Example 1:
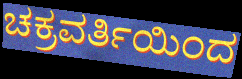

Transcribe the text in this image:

ಚಕ್ರವರ್ತಿಯಿಂದ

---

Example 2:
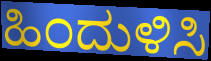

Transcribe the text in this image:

ಹಿಂದುಳಿಸಿ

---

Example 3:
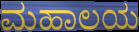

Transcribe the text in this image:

ಮಹಾಲಯ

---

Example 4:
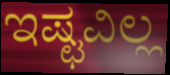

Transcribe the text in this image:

ಇಷ್ಟವಿಲ್ಲ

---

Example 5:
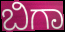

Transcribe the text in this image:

ಬಿಗಾ